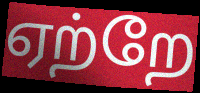
ஏற்றே